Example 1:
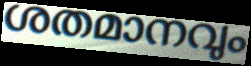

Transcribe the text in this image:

ശതമാനവും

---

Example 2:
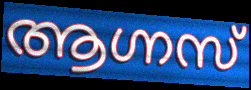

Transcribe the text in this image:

ആഗ്നസ്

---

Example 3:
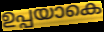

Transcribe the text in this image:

ഉപ്പയാകെ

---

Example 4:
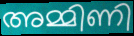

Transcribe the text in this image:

അമ്മിണി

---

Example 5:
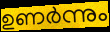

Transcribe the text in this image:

ഉണർന്നും